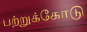
பற்றுக்கோடு